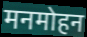
मनमोहन